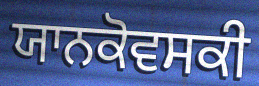
ਯਾਨਕੋਵਸਕੀ